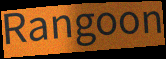
Rangoon